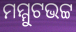
ମମ୍ମୁଟଭଟ୍ଟ